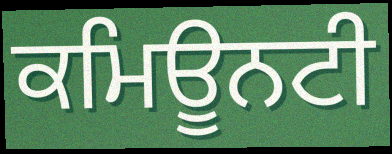
ਕਮਿਊਨਟੀ